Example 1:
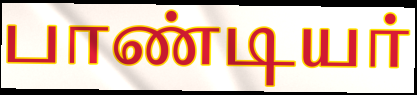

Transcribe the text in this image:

பாண்டியர்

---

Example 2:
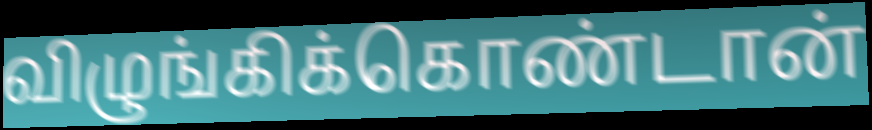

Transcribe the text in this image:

விழுங்கிக்கொண்டான்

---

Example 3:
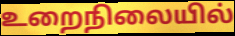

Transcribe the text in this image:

உறைநிலையில்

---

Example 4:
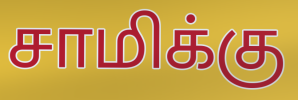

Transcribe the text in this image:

சாமிக்கு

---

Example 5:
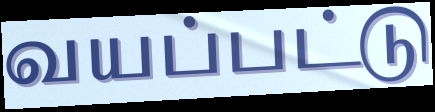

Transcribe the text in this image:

வயப்பட்டு